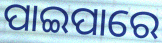
ପାଇପାରେ